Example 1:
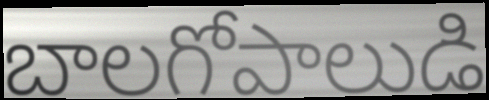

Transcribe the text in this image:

బాలగోపాలుడి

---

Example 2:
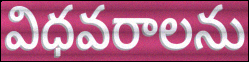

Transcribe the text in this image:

విధవరాలను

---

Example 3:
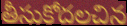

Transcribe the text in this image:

తీసుకోదలచిన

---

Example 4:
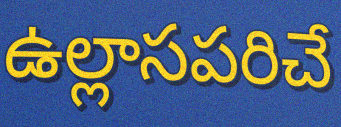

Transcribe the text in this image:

ఉల్లాసపరిచే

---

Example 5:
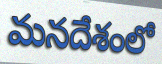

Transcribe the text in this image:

మనదేశంలో